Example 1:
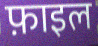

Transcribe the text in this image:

फ़ाइल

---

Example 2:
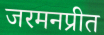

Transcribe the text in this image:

जरमनप्रीत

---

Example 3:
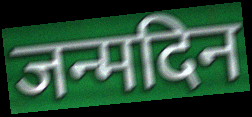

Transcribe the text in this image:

जन्‍मदिन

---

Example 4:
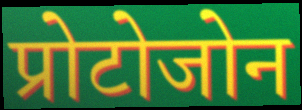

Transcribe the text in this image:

प्रोटोजोन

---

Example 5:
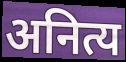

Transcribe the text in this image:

अनित्य